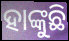
ହାଙ୍କୁଛି